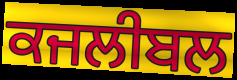
ਕਜਲੀਬਲ